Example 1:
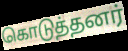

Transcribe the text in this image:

கொடுத்தனர்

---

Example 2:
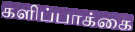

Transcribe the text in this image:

களிப்பாக்கை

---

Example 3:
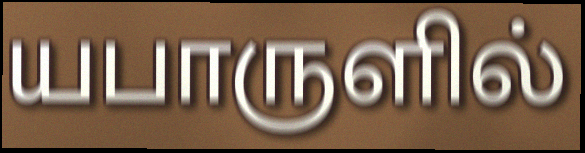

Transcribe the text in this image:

யபாருளில்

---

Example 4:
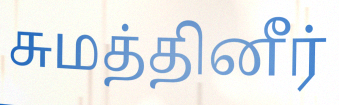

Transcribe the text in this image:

சுமத்தினீர்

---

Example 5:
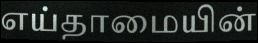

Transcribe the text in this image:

எய்தாமையின்